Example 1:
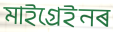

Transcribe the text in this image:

মাইগ্ৰেইনৰ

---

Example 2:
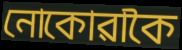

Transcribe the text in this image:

নোকোৱাকৈ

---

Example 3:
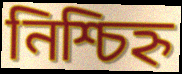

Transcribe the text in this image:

নিশ্চিহ্ন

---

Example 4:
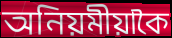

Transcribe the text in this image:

অনিয়মীয়াকৈ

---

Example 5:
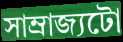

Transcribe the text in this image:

সাম্ৰাজ্যটো